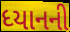
ધ્યાનની